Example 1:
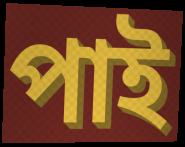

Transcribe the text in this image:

পাই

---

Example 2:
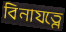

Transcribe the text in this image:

বিনাযত্নে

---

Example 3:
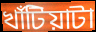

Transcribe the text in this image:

খাঁটিয়াটা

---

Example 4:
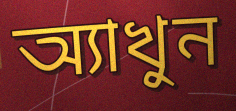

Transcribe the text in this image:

অ্যাখুন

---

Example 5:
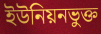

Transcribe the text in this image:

ইউনিয়নভুক্ত